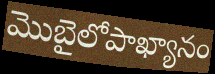
మొబైలోపాఖ్యానం